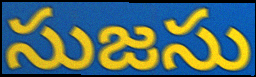
సుజసు